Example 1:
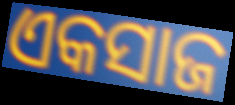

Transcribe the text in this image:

ଏକସାଜ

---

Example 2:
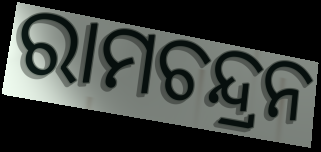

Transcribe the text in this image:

ରାମଚନ୍ଦ୍ରନ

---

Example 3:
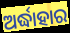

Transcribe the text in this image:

ଅର୍ଦ୍ଧାହାର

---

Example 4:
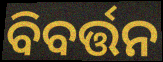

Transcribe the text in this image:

ବିବର୍ତ୍ତନ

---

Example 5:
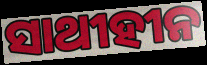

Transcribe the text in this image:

ସାଥୀହୀନ